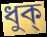
ধুক্